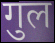
गुल